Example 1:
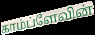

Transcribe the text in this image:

காம்ப்ளேவின்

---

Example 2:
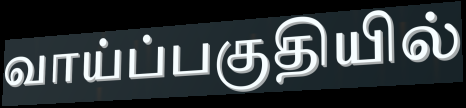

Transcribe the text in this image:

வாய்ப்பகுதியில்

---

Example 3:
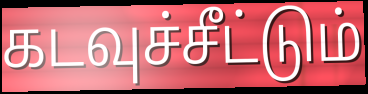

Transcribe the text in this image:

கடவுச்சீட்டும்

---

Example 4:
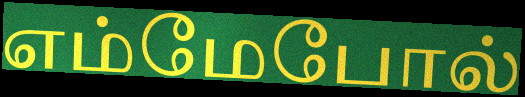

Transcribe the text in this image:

எம்மேபோல்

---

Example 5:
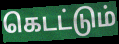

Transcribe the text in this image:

கெடட்டும்